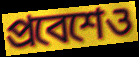
প্রবেশেও